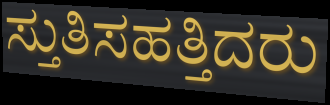
ಸ್ತುತಿಸಹತ್ತಿದರು